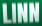
LINN